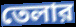
তেলার